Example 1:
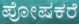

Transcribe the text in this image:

ಪೋಷಕರೆ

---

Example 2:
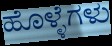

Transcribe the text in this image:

ಹೊಳ್ಳೆಗಳು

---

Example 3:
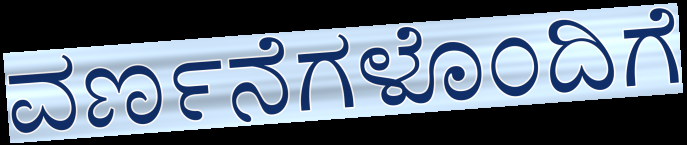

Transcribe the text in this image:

ವರ್ಣನೆಗಳೊಂದಿಗೆ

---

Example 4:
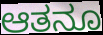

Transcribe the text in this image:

ಆತನೂ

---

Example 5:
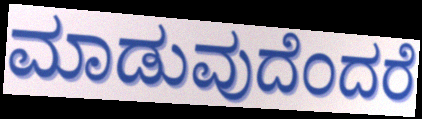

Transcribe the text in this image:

ಮಾಡುವುದೆಂದರೆ